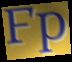
Fp